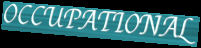
OCCUPATIONAL